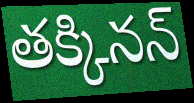
తక్కినన్